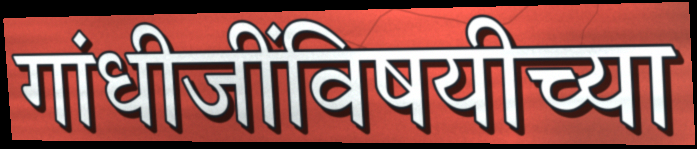
गांधीजींविषयीच्या